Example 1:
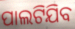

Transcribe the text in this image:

ପାଲଟିଯିବ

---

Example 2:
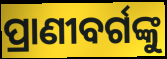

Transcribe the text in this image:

ପ୍ରାଣୀବର୍ଗଙ୍କୁ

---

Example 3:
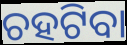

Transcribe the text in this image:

ଚହଟିବା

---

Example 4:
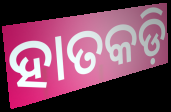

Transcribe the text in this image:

ହାତକଡ଼ି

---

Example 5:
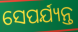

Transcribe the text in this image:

ସେପର୍ଯ୍ୟନ୍ତ